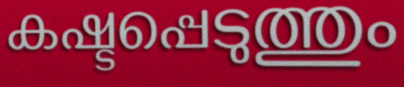
കഷ്ടപ്പെടുത്തും